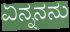
ಏನ್ನನನು